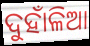
ଦୁହାଁଳିଆ